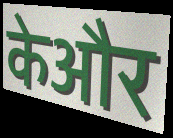
केऔर